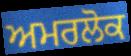
ਅਮਰਲੋਕ